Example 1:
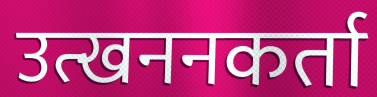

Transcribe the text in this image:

उत्खननकर्ता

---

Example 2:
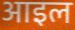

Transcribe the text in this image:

आइल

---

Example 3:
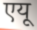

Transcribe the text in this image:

एयू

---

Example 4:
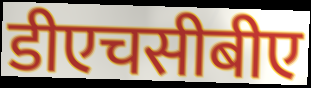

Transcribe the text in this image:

डीएचसीबीए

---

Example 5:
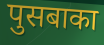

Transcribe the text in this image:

पुसबाका